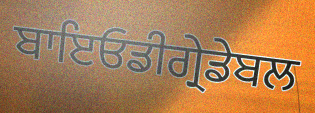
ਬਾਇਓਡੀਗ੍ਰੇਡੇਬਲ